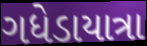
ગધેડાયાત્રા